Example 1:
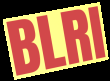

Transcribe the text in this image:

BLRI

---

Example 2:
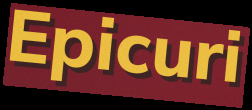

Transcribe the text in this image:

Epicuri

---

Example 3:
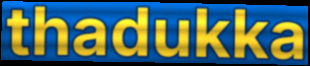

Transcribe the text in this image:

thadukka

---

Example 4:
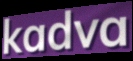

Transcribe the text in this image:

kadva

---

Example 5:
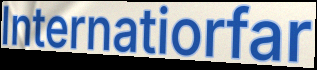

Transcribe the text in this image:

Internatiorfar